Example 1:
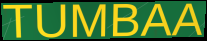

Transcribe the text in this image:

TUMBAA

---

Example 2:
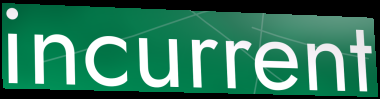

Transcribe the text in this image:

incurrent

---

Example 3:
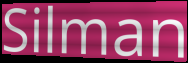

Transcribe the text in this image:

Silman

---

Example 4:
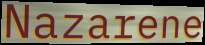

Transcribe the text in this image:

Nazarene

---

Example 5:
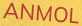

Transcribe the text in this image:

ANMOL